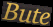
Bute